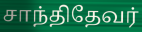
சாந்திதேவர்